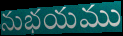
నుభయము